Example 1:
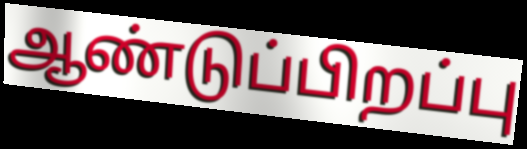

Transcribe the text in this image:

ஆண்டுப்பிறப்பு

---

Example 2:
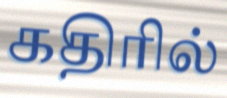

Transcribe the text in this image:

கதிரில்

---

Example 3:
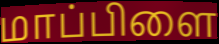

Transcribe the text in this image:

மாப்பிளை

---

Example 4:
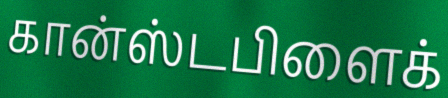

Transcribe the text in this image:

கான்ஸ்டபிளைக்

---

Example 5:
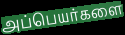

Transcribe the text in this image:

அப்பெயர்களை